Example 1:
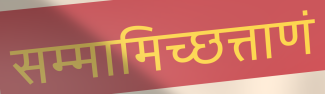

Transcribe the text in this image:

सम्मामिच्छत्ताणं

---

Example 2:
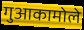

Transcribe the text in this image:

गुआकामोले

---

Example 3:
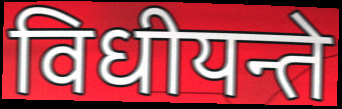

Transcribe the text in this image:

विधीयन्ते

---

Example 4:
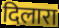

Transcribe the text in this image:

दिलारा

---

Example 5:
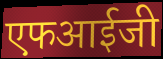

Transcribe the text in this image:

एफआईजी